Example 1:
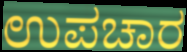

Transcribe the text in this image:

ಉಪಚಾರ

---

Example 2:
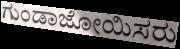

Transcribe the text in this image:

ಗುಂಡಾಜೋಯಿಸರು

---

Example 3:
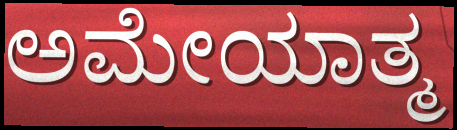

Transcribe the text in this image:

ಅಮೇಯಾತ್ಮ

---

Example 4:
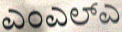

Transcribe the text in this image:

ಎಂಎಲ್ಎ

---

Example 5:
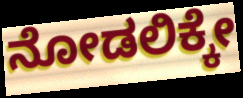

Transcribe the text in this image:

ನೋಡಲಿಕ್ಕೇ